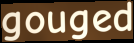
gouged